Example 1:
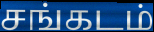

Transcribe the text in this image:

சங்கடம்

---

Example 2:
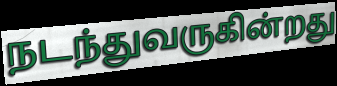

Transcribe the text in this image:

நடந்துவருகின்றது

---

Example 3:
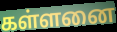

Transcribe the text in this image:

கள்ளனை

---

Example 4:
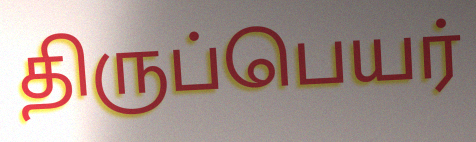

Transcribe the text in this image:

திருப்பெயர்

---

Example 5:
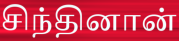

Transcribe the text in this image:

சிந்தினான்